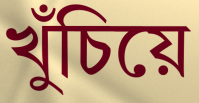
খুঁচিয়ে